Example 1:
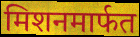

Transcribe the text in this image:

मिशनमार्फत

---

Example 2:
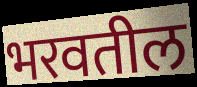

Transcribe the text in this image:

भरवतील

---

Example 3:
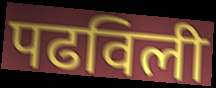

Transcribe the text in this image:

पढविली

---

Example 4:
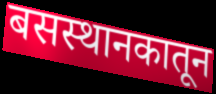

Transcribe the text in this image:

बसस्थानकातून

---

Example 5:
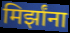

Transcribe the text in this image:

मिर्झांना